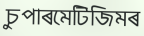
চুপাৰমেটিজিমৰ